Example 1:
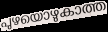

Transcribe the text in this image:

പുഴയൊഴുകാത്ത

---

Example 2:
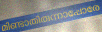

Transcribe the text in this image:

മിണ്ടാതിരുന്നാപ്പോരേ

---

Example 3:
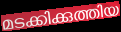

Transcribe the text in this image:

മടക്കിക്കുത്തിയ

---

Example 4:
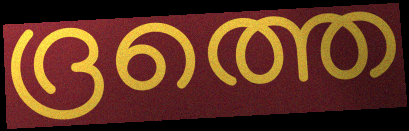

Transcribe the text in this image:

ദ്രത്തെ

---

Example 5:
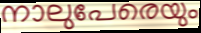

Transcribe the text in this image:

നാലുപേരെയും